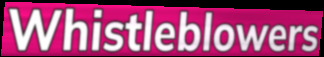
Whistleblowers